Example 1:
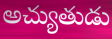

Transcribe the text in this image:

అచ్యుతుడు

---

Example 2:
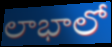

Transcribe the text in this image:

లాభాలో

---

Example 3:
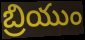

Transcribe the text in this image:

బ్రియుం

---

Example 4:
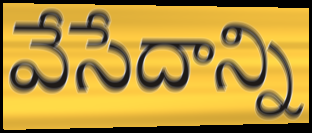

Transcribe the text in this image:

వేసేదాన్ని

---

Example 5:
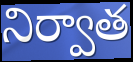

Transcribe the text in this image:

నిర్వాత